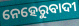
ନେହେରୁବାଦୀ